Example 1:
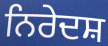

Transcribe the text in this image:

ਨਿਰੇਦਸ਼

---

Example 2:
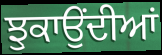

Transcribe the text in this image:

ਝੁਕਾਉਂਦੀਆਂ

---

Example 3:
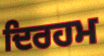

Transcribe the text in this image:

ਦਿਰਹਮ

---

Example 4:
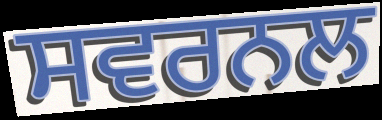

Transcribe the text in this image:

ਸਵਰਨਲ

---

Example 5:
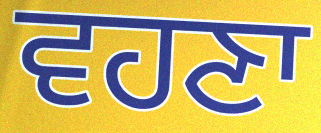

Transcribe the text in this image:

ਵਹਣਾ